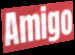
Amigo